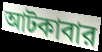
আটকাবার